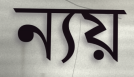
ন্যয়